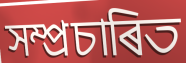
সম্প্ৰচাৰিত